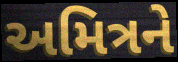
અમિત્રને